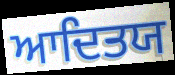
ਆਦਿਤਯ